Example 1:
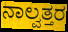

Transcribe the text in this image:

ನಾಲ್ವತ್ತರ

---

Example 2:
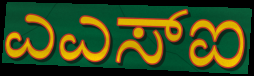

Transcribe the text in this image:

ಎಎಸ್ಐ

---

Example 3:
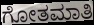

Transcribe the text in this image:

ಗೋತಮಾತಿ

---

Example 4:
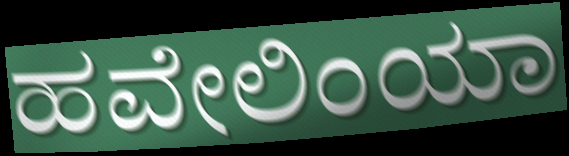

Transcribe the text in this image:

ಹವೇಲಿಂಯಾ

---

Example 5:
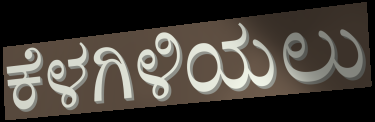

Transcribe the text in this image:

ಕೆಳಗಿಳಿಯಲು